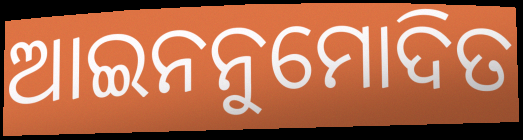
ଆଇନନୁମୋଦିତ